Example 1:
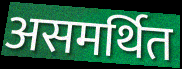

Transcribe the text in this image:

असमर्थित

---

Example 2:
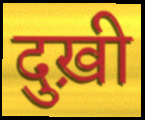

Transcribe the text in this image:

दुख़ी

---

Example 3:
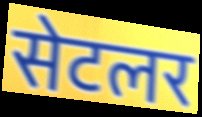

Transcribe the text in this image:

सेटलर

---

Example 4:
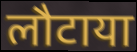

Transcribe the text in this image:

लौटाया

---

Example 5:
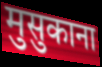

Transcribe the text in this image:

मुसुकाना